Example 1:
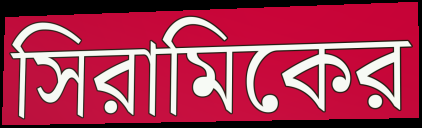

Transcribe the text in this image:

সিরামিকের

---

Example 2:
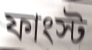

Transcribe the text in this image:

ফাংস্ট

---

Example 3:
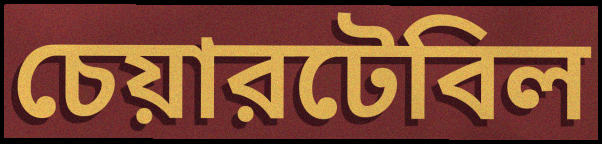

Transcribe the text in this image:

চেয়ারটেবিল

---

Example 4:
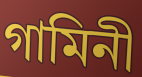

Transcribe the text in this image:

গামিনী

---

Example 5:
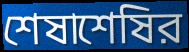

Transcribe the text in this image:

শেষাশেষির